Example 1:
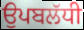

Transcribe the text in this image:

ਉਪਬਲੱਧੀ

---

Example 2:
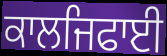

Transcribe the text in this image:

ਕਾਲਜਿਫਾਈ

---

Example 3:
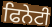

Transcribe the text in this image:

ਫਿਨੇਟੀ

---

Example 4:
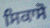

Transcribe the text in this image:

ਸਿਕਾਸੋ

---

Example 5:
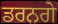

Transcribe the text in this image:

ਡਰਨਗੇ